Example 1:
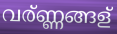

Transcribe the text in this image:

വര്ണ്ണങ്ങള്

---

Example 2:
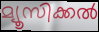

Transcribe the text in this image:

മ്യൂസിക്കൽ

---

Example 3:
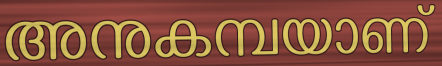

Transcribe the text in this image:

അനുകമ്പയാണ്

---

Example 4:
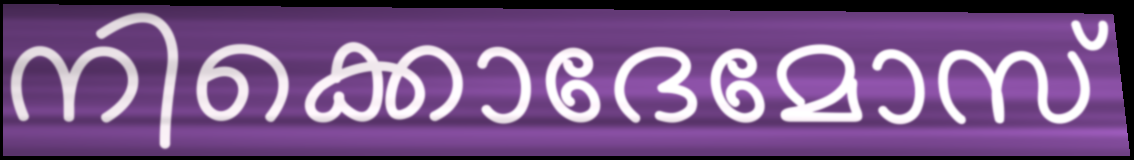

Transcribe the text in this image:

നിക്കൊദേമോസ്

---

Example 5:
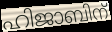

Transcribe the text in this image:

ഹിജാബിന്